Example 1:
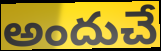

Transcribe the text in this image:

అందుచే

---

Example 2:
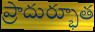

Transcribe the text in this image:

ప్రాదుర్భూత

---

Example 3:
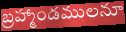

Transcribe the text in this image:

బ్రహ్మాండములనూ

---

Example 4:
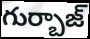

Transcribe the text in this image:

గుర్బాజ్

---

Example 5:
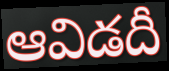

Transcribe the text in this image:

ఆవిడదీ